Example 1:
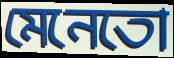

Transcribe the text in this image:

মেনেতো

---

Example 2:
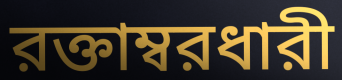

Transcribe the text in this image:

রক্তাম্বরধারী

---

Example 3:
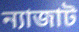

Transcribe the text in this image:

ন্যাজাট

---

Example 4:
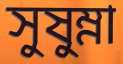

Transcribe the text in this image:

সুষুম্না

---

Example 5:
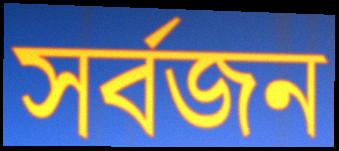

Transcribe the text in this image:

সর্বজন